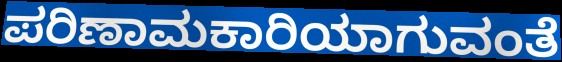
ಪರಿಣಾಮಕಾರಿಯಾಗುವಂತೆ